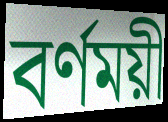
বর্ণময়ী